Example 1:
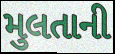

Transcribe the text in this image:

મુલતાની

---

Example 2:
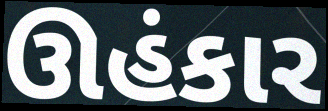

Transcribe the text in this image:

ઊહંકાર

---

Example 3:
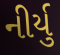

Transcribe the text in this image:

નીર્યુ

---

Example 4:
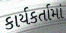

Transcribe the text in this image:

કાર્યકર્તામાં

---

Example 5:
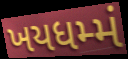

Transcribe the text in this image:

ખયધમ્મં